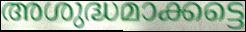
അശുദ്ധമാക്കട്ടെ